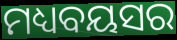
ମଧ୍ୟବୟସର